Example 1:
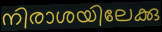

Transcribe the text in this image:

നിരാശയിലേക്കു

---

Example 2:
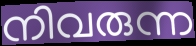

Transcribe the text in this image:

നിവരുന്ന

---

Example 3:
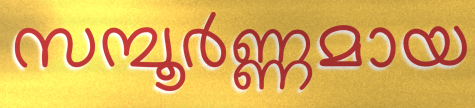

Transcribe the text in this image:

സമ്പൂർണ്ണമായ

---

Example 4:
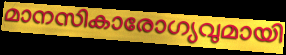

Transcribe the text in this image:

മാനസികാരോഗ്യവുമായി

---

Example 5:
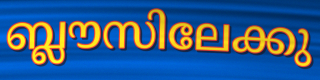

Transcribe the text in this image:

ബ്ലൗസിലേക്കു